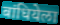
बांधियेला